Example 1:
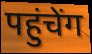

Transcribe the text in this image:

पहुंचेंग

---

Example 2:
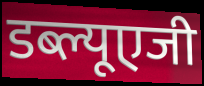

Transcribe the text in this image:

डब्ल्यूएजी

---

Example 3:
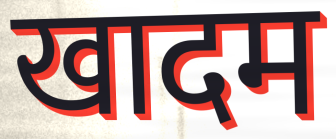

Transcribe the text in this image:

खादम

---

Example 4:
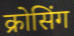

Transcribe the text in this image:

क्रोसिंग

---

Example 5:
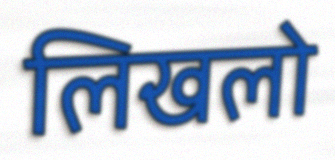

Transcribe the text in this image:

लिखलो